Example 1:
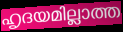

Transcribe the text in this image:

ഹൃദയമില്ലാത്ത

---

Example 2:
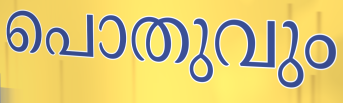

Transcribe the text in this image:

പൊതുവും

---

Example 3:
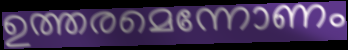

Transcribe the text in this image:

ഉത്തരമെന്നോണം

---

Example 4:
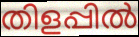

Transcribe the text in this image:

തിളപ്പിൽ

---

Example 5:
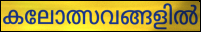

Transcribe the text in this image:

കലോത്സവങ്ങളിൽ